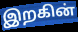
இறகின்